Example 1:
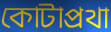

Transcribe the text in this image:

কোটাপ্রথা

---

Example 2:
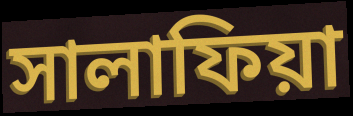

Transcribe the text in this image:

সালাফিয়া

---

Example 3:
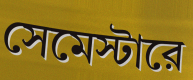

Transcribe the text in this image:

সেমেস্টারে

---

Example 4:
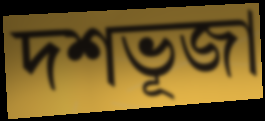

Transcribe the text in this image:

দশভূজা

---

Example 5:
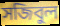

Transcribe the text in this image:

সজিবুল